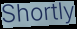
Shortly